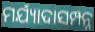
ମର୍ଯ୍ୟାଦାସମ୍ପନ୍ନ